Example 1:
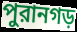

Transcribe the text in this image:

পুরানগড়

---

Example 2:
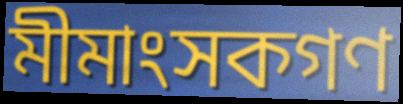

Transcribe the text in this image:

মীমাংসকগণ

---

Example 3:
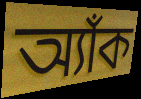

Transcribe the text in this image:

অ্যাঁক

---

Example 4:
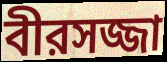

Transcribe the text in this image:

বীরসজ্জা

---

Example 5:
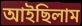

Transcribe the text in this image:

আইছিলাম